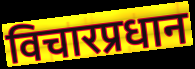
विचारप्रधान